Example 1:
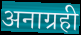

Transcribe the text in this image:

अनाग्रही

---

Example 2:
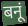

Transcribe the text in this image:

बनूं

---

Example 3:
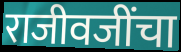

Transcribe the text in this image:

राजीवजींचा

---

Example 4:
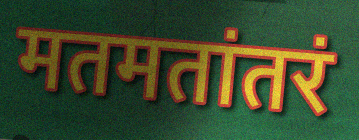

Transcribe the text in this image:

मतमतांतरं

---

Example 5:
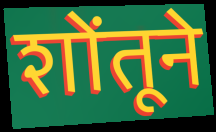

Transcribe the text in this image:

शोंतूने